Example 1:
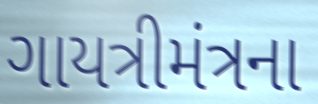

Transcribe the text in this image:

ગાયત્રીમંત્રના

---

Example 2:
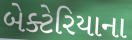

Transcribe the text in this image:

બેક્ટેરિયાના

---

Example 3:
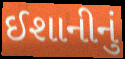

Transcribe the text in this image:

ઈશાનીનું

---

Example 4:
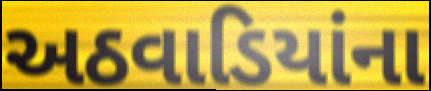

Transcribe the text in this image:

અઠવાડિયાંના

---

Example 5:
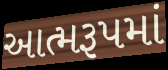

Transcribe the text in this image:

આત્મરૂપમાં